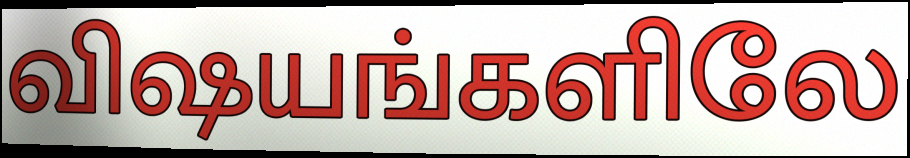
விஷயங்களிலே